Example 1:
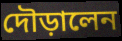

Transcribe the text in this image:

দৌড়ালেন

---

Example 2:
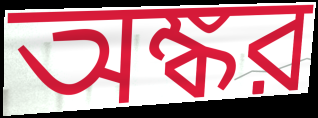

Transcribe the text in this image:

অঙ্কর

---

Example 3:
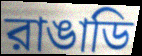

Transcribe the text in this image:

রাঙাডি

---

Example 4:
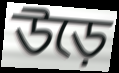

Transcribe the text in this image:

উড়ে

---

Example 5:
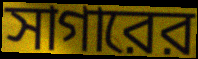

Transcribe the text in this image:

সাগারের